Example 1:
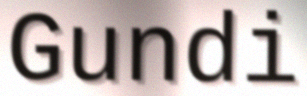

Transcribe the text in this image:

Gundi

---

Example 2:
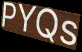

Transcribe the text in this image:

PYQs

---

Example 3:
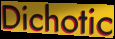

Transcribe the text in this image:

Dichotic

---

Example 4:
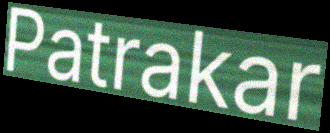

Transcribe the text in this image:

Patrakar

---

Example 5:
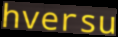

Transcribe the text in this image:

hversu